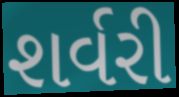
શર્વરી